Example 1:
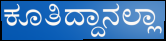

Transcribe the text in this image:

ಕೂತಿದ್ದಾನಲ್ಲಾ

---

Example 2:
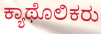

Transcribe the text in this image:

ಕ್ಯಾಥೊಲಿಕರು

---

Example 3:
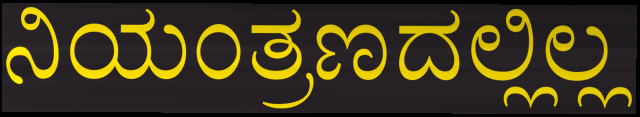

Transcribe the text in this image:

ನಿಯಂತ್ರಣದಲ್ಲಿಲ್ಲ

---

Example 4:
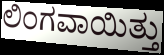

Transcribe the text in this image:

ಲಿಂಗವಾಯಿತ್ತು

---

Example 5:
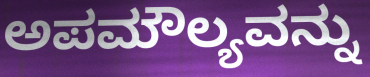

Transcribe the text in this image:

ಅಪಮೌಲ್ಯವನ್ನು